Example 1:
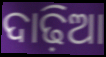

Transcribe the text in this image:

ଦାଢ଼ିଆ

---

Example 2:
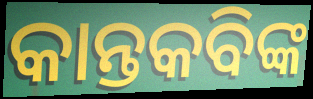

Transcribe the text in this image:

କାନ୍ତକବିଙ୍କ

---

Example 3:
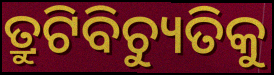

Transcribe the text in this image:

ତ୍ରୁଟିବିଚ୍ୟୁତିକୁ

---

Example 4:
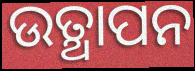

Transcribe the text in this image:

ଉତ୍ଥାପନ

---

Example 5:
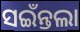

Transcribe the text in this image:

ସଇଁନ୍ତଲା